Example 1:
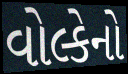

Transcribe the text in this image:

વોલ્કેનો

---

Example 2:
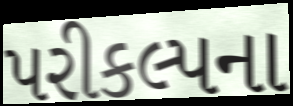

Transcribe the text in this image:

પરીકલ્પના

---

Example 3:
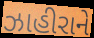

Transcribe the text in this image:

ઝાહીરાને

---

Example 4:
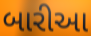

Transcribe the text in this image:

બારીઆ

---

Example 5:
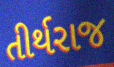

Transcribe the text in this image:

તીર્થરાજ